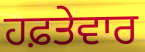
ਹਫ਼ਤੇਵਾਰ